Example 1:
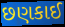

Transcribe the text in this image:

છણકાઈ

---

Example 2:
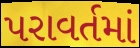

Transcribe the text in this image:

પરાવર્તમાં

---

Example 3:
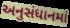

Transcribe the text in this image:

અનુસંધાનમાં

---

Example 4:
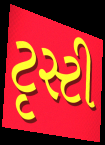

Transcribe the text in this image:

ટૃસ્ટી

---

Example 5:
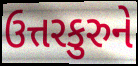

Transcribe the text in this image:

ઉત્તરકુરુને